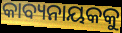
କାବ୍ୟନାୟକକୁ